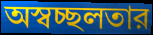
অস্বচ্ছলতার